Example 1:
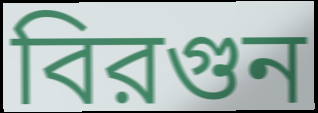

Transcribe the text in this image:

বিরগুন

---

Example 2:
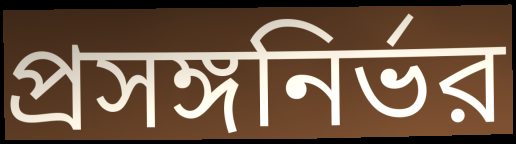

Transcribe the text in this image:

প্রসঙ্গনির্ভর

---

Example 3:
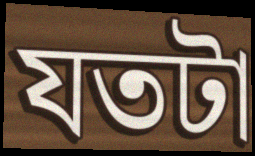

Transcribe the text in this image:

যতটা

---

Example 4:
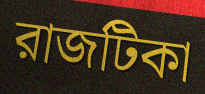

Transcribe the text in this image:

রাজটিকা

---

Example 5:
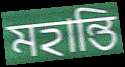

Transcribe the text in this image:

মহান্তি